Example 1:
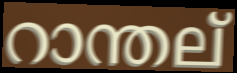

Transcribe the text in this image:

റാന്തല്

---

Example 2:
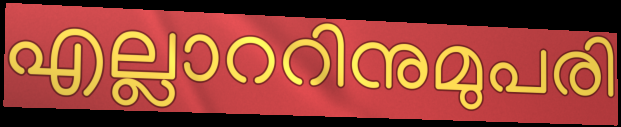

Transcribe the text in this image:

എല്ലാററിനുമുപരി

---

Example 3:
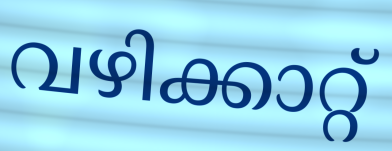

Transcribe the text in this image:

വഴിക്കാറ്റ്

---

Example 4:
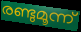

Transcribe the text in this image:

രണ്ടുമൂന്ന്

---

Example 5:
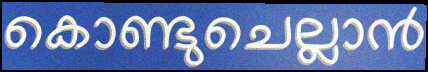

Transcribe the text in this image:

കൊണ്ടുചെല്ലാൻ